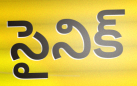
సైనిక్